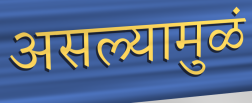
असल्यामुळं